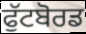
ਫੁੱਟਬੋਰਡ